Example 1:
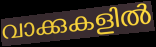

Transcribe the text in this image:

വാക്കുകളിൽ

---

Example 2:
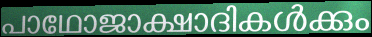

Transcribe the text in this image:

പാഥോജാക്ഷാദികൾക്കും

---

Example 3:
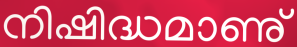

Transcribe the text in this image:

നിഷിദ്ധമാണു്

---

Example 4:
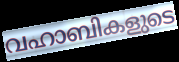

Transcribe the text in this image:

വഹാബികളുടെ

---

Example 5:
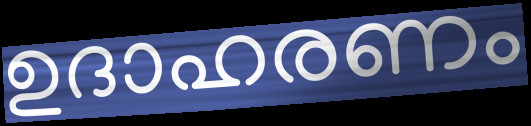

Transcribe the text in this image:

ഉദാഹരണം